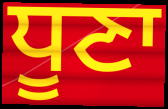
ਧੂਣਾ